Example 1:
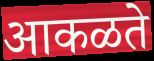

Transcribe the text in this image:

आकळते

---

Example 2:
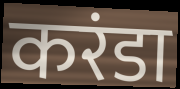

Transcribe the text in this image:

करंडा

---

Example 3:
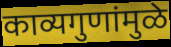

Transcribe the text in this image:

काव्यगुणांमुळे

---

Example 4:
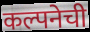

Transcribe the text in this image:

कल्पनेची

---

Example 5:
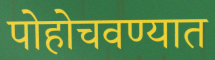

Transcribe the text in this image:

पोहोचवण्यात